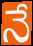
నే